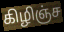
கிழிஞ்ச